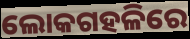
ଲୋକଗହଳିରେ